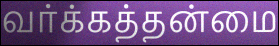
வர்க்கத்தன்மை